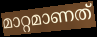
മാറ്റമാണത്